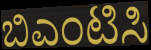
ಬಿಎಂಟಿಸಿ